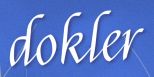
dokler